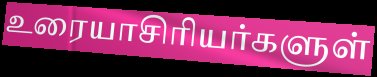
உரையாசிரியர்களுள்